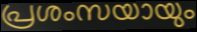
പ്രശംസയായും